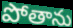
పోతాను